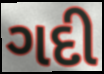
ગદી